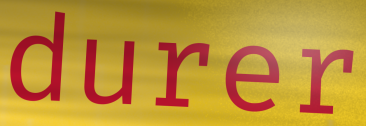
durer